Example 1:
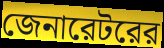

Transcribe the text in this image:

জেনারেটরের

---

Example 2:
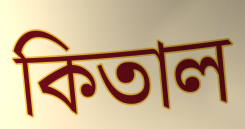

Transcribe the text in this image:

কিতাল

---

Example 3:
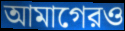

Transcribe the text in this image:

আমাগেরও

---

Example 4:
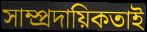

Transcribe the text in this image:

সাম্প্রদায়িকতাই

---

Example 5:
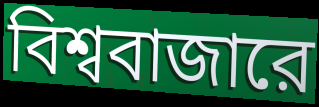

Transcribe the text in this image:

বিশ্ববাজারে